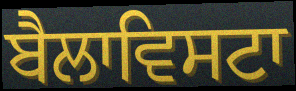
ਬੈਲਾਵਿਸਟਾ